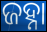
ଜହ୍ନା